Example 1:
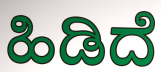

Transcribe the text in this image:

ಹಿಡಿದೆ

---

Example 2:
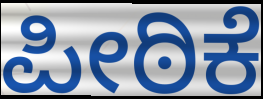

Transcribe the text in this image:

ಪೀಠಿಕೆ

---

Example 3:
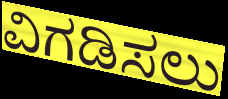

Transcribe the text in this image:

ವಿಗಡಿಸಲು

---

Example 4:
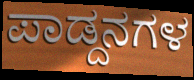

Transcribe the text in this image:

ಪಾಡ್ದನಗಳ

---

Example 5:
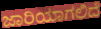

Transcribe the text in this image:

ಜಾರಿಯಾಗಲಿದೆ